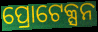
ପ୍ରୋଟେକ୍ସନ